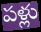
పళ్లు